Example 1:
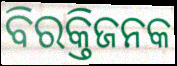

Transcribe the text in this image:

ବିରକ୍ତିଜନକ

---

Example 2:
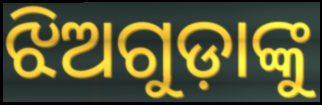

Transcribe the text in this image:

ଝିଅଗୁଡ଼ାଙ୍କୁ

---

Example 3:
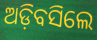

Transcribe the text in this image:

ଅଡ଼ିବସିଲେ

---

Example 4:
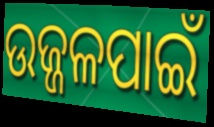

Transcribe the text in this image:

ଉଜ୍ଜଳପାଇଁ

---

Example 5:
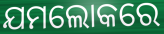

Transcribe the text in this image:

ଯମଲୋକରେ